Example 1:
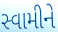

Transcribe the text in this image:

સ્વામીને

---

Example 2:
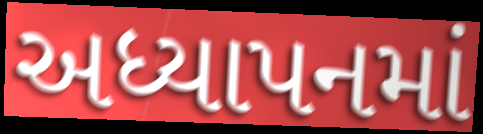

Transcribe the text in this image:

અધ્યાપનમાં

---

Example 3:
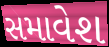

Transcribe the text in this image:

સમાવેશ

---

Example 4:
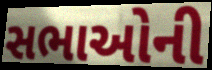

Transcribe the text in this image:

સભાઓની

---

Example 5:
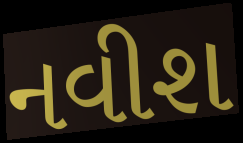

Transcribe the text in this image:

નવીશ